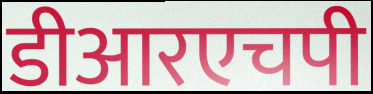
डीआरएचपी